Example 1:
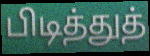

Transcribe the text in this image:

பிடித்துத்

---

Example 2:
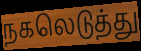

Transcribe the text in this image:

நகலெடுத்து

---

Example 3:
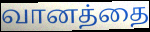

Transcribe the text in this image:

வானத்தை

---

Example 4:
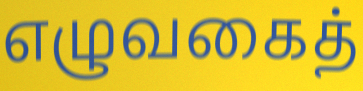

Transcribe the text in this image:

எழுவகைத்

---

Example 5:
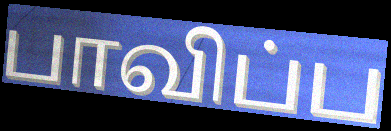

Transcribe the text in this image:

பாவிப்ப